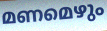
മണമെഴും